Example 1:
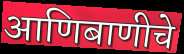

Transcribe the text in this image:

आणिबाणीचे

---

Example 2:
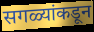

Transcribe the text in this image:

सगळ्यांकडून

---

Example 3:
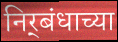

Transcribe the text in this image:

निर्बंधाच्या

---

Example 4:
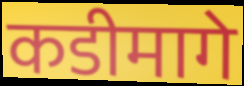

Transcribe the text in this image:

कडीमागे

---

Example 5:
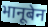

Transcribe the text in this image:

भानूबेन